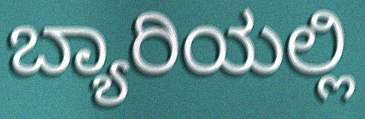
ಬ್ಯಾರಿಯಲ್ಲಿ